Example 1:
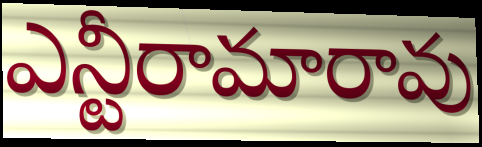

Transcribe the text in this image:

ఎన్టీరామారావు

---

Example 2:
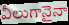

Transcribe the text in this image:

వీలుగానైనా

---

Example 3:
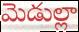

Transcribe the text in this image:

మెడుల్లా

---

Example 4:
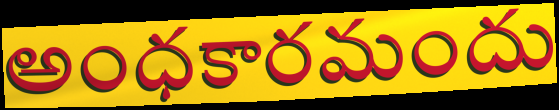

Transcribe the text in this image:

అంధకారమందు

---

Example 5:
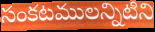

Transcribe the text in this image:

సంకటములన్నిటిని